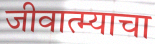
जीवात्म्याचा